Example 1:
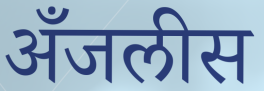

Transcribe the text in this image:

अँजलीस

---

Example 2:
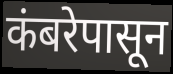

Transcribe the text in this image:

कंबरेपासून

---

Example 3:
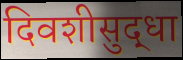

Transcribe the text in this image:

दिवशीसुद्धा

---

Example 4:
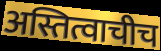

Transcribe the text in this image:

अस्तित्वाचीच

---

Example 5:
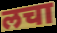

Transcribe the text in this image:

लचा